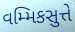
વમ્મિકસુત્તે